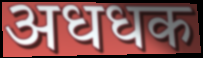
अधधक